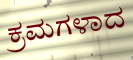
ಕ್ರಮಗಳಾದ